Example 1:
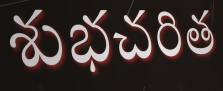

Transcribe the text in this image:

శుభచరిత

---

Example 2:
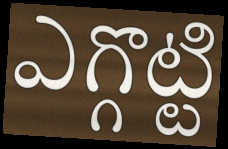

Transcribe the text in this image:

ఎగ్గొట్టి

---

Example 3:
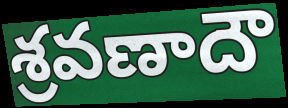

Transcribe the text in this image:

శ్రవణాదౌ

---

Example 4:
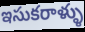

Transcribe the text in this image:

ఇసుకరాళ్ళు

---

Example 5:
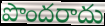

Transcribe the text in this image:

పొందరాదు